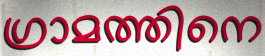
ഗ്രാമത്തിനെ